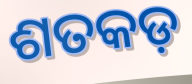
ଶତକଡ଼